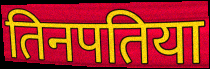
तिनपतिया